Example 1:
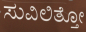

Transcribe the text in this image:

ಸುವಿಲಿತ್ತೋ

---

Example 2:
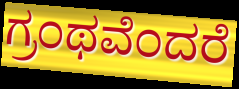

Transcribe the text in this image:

ಗ್ರಂಥವೆಂದರೆ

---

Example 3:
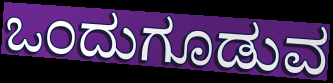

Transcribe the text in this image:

ಒಂದುಗೂಡುವ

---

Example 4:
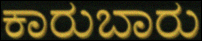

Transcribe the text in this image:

ಕಾರುಬಾರು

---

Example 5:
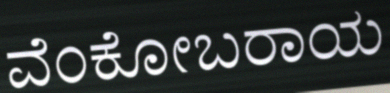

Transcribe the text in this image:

ವೆಂಕೋಬರಾಯ